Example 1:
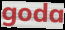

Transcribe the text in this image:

goda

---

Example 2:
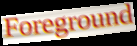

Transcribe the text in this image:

Foreground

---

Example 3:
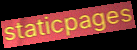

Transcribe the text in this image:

staticpages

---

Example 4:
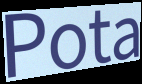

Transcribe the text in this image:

Pota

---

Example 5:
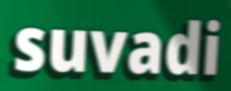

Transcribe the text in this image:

suvadi